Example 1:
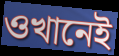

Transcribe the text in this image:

ওখানেই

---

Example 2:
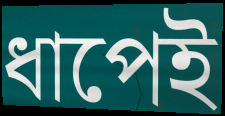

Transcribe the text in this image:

ধাপেই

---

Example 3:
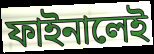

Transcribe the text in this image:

ফাইনালেই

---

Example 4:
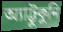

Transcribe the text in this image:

অ্যাট্টুকুনি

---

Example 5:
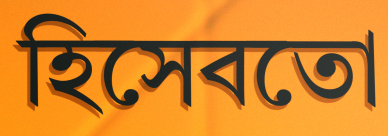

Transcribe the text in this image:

হিসেবতো